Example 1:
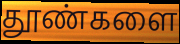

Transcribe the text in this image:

தூண்களை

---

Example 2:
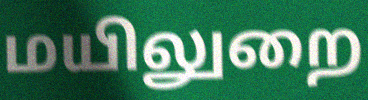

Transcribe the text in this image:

மயிலுறை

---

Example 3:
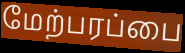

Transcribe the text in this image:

மேற்பரப்பை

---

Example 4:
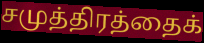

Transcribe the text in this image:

சமுத்திரத்தைக்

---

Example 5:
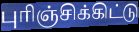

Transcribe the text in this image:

புரிஞ்சிக்கிட்டு